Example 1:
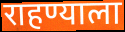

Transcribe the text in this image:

राहण्याला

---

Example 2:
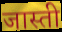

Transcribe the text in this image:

जास्ती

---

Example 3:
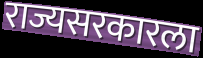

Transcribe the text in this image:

राज्यसरकारला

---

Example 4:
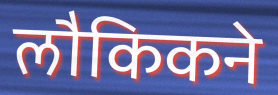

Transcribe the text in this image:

लौकिकने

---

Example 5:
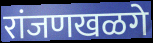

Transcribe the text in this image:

रांजणखळगे